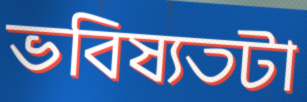
ভবিষ্যতটা